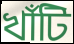
খাঁটি